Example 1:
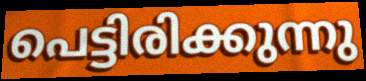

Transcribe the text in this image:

പെട്ടിരിക്കുന്നു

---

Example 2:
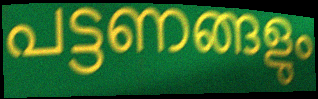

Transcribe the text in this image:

പട്ടണങ്ങളും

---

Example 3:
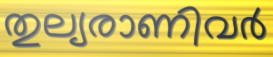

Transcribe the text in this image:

തുല്യരാണിവർ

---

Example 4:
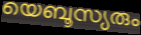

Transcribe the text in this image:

യെബൂസ്യരും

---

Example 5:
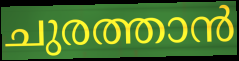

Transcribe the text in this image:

ചുരത്താൻ